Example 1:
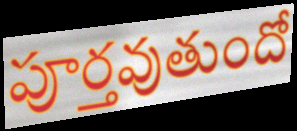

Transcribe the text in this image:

పూర్తవుతుందో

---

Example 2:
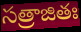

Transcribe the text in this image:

సత్రాజితః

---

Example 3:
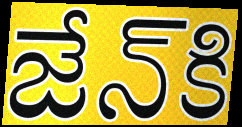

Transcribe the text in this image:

జేన్‌కి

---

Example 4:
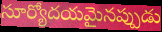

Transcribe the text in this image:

సూర్యోదయమైనప్పుడు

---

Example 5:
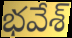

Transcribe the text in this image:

భవేశ్